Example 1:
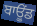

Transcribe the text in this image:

ਬਾਊਂਡ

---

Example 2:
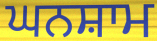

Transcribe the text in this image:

ਘਨਸ਼ਾਮ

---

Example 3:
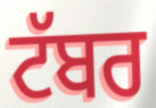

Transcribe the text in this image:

ਟੱਬਰ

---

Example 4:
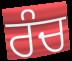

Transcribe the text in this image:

ਰੰਚ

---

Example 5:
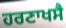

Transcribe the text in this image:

ਹਰਣਾਖਸੈ